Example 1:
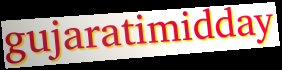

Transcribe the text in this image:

gujaratimidday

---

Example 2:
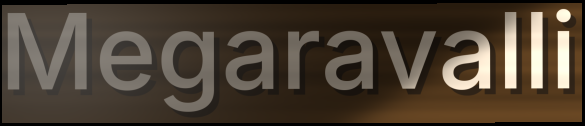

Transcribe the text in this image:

Megaravalli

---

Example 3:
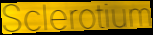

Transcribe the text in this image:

Sclerotium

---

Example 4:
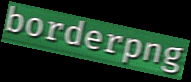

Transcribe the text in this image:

borderpng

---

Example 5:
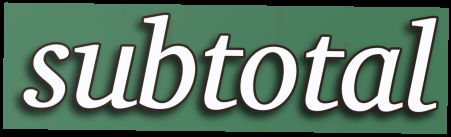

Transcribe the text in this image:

subtotal